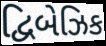
દ્વિબેઝિક